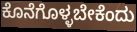
ಕೊನೆಗೊಳ್ಳಬೇಕೆಂದು